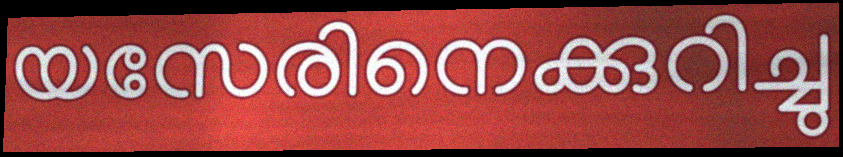
യസേരിനെക്കുറിച്ചു